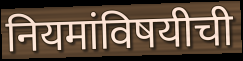
नियमांविषयीची